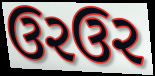
ઉરઉર